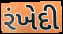
રંખેદી